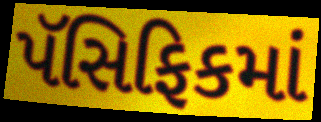
પૅસિફિકમાં